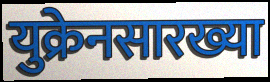
युक्रेनसारख्या